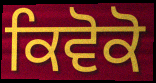
ਕਿਵੋਕੋ